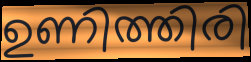
ഉണിത്തിരി